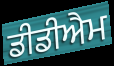
ਡੀਡੀਐਮ